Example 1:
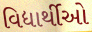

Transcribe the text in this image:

વિદ્યાર્થીઓ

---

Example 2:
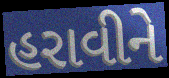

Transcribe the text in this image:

હરાવીને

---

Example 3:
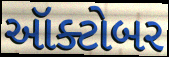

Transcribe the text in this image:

ઑક્ટોબર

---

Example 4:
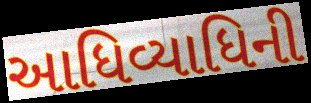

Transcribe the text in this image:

આધિવ્યાધિની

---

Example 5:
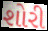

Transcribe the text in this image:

શોરી